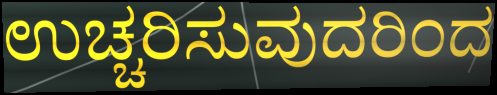
ಉಚ್ಚರಿಸುವುದರಿಂದ